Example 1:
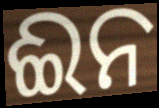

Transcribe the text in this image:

ଈନ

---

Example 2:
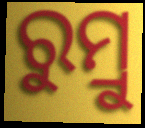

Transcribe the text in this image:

ରୁମ୍ରୁ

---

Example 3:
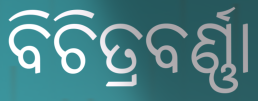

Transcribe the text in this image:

ବିଚିତ୍ରବର୍ଣ୍ଣା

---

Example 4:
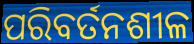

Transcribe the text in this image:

ପରିବର୍ତନଶୀଳ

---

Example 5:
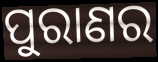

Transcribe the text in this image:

ପୁରାଣର